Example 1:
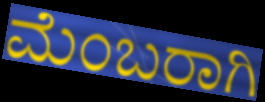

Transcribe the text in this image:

ಮೆಂಬರಾಗಿ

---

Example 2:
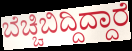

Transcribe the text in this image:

ಬೆಚ್ಚಿಬಿದ್ದಿದ್ದಾರೆ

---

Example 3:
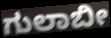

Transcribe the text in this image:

ಗುಲಾಬೀ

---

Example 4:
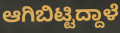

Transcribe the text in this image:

ಆಗಿಬಿಟ್ಟಿದ್ದಾಳೆ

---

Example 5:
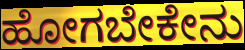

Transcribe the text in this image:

ಹೋಗಬೇಕೇನು